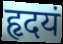
हृदयं